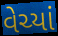
વેચ્યાં